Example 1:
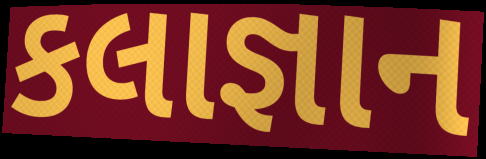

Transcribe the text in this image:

કલાજ્ઞાન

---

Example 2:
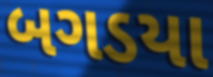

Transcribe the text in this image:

બગડયા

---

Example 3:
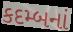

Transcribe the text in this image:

કદમ્બનાં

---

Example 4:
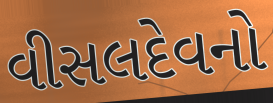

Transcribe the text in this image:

વીસલદેવનો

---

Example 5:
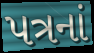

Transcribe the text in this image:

પત્રનાં